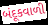
બંદૂકવાળી